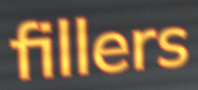
fillers